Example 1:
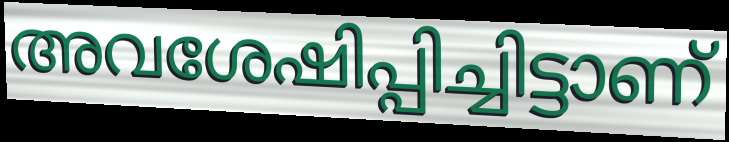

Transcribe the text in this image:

അവശേഷിപ്പിച്ചിട്ടാണ്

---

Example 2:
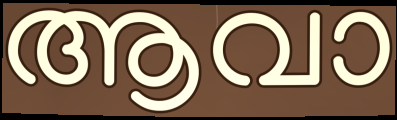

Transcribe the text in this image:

ആവാ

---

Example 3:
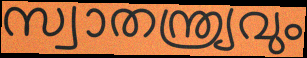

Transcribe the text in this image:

സ്വാതന്ത്ര്യവും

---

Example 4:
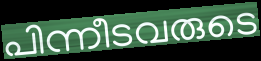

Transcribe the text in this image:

പിന്നീടവരുടെ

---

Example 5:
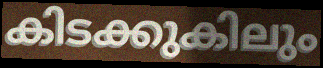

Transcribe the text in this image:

കിടക്കുകിലും